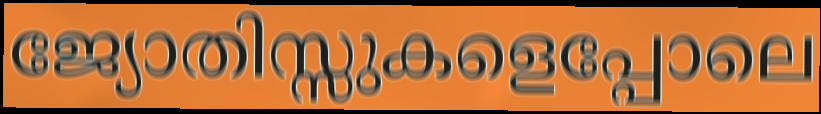
ജ്യോതിസ്സുകളെപ്പോലെ